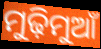
ମୁଢ଼ିମୁଆଁ